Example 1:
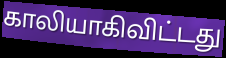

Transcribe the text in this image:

காலியாகிவிட்டது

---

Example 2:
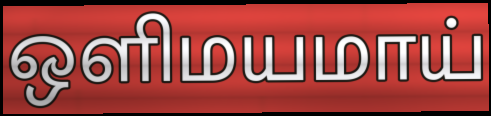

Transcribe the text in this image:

ஒளிமயமாய்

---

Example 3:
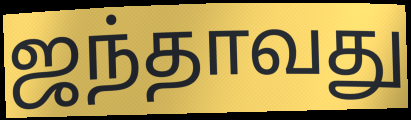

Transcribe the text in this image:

ஜந்தாவது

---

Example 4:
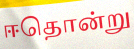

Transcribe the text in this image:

ஈதொன்று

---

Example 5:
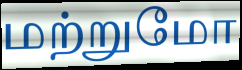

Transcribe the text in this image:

மற்றுமோ